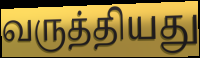
வருத்தியது